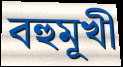
বহুমূখী